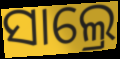
ସାଲ୍ରେ